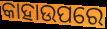
କାହାଉପରେ